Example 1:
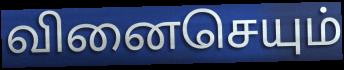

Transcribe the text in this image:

வினைசெயும்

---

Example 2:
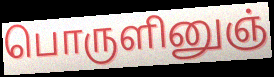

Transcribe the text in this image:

பொருளினுஞ்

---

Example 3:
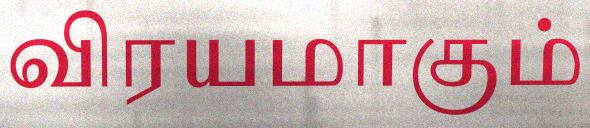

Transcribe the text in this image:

விரயமாகும்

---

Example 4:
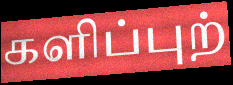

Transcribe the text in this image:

களிப்புற்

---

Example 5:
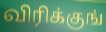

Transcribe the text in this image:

விரிக்குங்